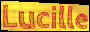
Lucille